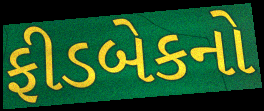
ફીડબેકનો